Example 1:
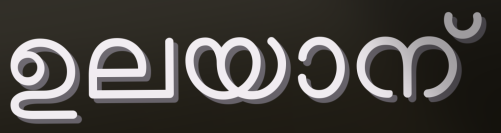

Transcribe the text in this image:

ഉലയാന്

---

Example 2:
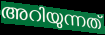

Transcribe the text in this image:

അറിയുന്നത്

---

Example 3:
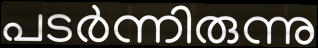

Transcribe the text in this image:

പടർന്നിരുന്നു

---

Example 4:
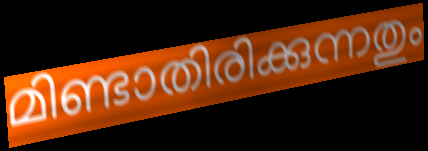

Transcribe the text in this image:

മിണ്ടാതിരിക്കുന്നതും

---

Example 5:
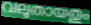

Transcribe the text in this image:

വലുതായതും